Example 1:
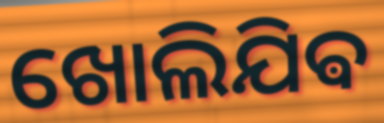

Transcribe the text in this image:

ଖୋଲିଯିଵ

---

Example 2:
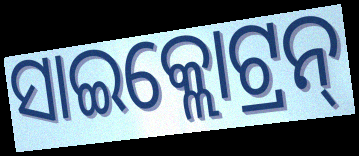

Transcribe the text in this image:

ସାଇକ୍ଲୋଟ୍ରନ୍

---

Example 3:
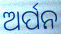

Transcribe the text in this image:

ଅର୍ପନ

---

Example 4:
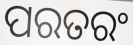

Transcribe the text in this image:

ପରତରଂ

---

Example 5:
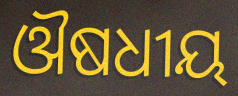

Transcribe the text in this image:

ଔଷଧୀୟ